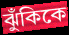
ঝুঁকিকে